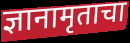
ज्ञानामृताचा